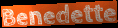
Benedette